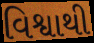
વિશ્વાથી